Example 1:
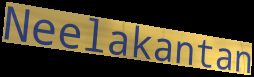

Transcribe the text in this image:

Neelakantan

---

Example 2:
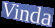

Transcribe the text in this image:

Vinda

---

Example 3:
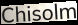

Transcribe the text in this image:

Chisolm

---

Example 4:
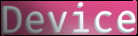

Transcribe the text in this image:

Device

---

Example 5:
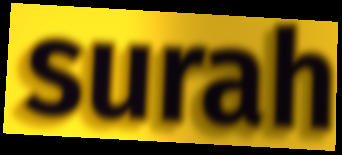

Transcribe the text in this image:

surah